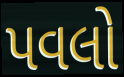
પવલો